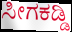
ಸೀಗಕಡ್ಡಿ